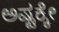
ಅಷ್ಟಕ್ಕೇ